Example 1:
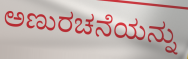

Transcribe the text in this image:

ಅಣುರಚನೆಯನ್ನು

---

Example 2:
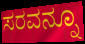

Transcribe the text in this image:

ಸರವನ್ನೂ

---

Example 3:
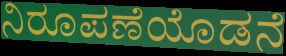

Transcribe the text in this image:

ನಿರೂಪಣೆಯೊಡನೆ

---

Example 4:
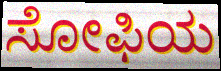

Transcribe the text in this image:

ಸೋಫಿಯ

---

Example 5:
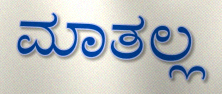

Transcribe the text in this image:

ಮಾತಲ್ಲ